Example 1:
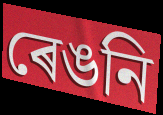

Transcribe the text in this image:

ৰেঙনি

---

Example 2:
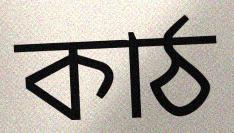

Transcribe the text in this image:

কাঠ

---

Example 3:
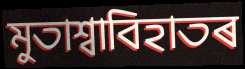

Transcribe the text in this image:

মুতাশ্বাবিহাতৰ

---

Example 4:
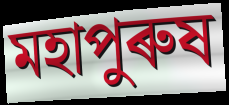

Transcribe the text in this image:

মহাপুৰুষ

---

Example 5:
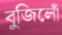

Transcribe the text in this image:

বুজিলোঁ